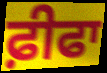
ਫ਼ੀਫਾ